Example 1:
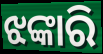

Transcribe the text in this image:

ଝଙ୍କାରି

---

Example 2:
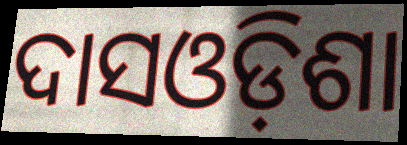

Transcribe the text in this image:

ଦାସଓଡ଼ିଶା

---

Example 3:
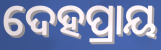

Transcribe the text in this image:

ଦେହପ୍ରାୟ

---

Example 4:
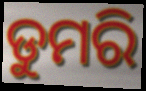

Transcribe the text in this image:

ଡୁମରି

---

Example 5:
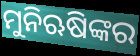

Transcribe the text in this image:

ମୁନିଋଷିଙ୍କର